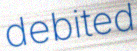
debited